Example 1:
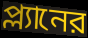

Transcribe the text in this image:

প্ল্যানের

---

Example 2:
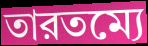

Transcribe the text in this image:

তারতম্যে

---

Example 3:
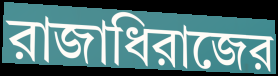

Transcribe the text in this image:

রাজাধিরাজের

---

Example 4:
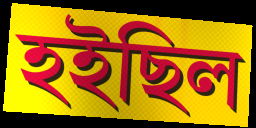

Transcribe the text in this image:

হইছিল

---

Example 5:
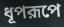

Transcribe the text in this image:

ধূপরূপে